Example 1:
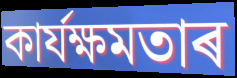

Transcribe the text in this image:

কাৰ্যক্ষমতাৰ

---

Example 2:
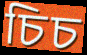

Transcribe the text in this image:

চিচ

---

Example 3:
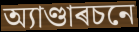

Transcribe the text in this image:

অ্যাণ্ডাৰচনে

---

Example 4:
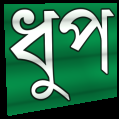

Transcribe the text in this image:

ধুপ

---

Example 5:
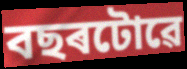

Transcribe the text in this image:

বছৰটোৱে